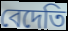
বেদেতি